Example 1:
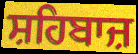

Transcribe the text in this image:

ਸ਼ਹਿਬਾਜ਼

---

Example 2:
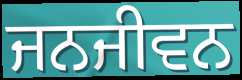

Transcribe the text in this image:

ਜਨਜੀਵਨ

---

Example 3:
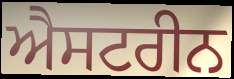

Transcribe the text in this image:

ਐਸਟਰੀਨ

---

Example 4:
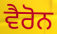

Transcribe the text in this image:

ਵੈਰੋਨ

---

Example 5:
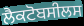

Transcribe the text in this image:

ਲੈਕਟੋਬਸੀਲਸ